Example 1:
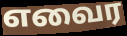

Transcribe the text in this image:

எவைர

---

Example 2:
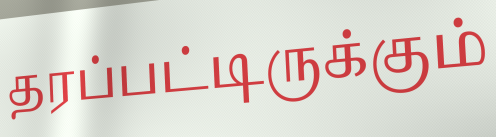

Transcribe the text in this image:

தரப்பட்டிருக்கும்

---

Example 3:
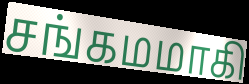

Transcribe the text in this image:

சங்கமமாகி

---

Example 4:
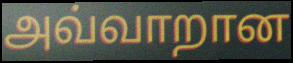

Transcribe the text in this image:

அவ்வாறான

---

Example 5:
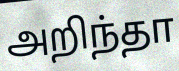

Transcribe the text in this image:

அறிந்தா